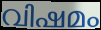
വിഷമം